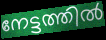
നേട്ടത്തിൽ